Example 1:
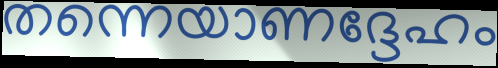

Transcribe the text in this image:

തന്നെയാണദ്ദേഹം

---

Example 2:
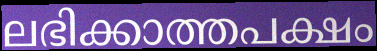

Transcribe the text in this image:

ലഭിക്കാത്തപക്ഷം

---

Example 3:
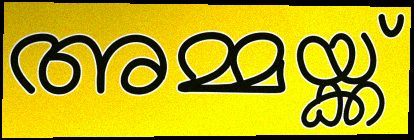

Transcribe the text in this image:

അമ്മയ്ക്ക്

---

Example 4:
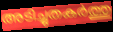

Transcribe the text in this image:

അടിച്ചുതകർത്തു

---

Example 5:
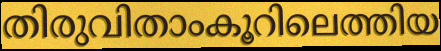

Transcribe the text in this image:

തിരുവിതാംകൂറിലെത്തിയ